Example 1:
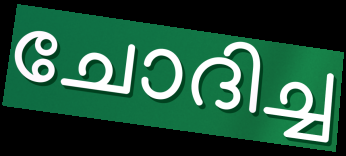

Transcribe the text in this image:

ചോദിച്ച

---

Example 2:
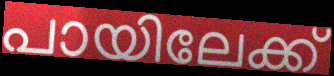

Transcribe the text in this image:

പായിലേക്ക്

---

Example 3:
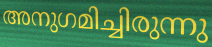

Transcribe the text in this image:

അനുഗമിച്ചിരുന്നു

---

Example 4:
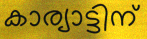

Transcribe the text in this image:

കാര്യാട്ടിന്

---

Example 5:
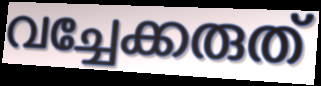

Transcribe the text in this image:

വച്ചേക്കരുത്